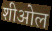
शीओल